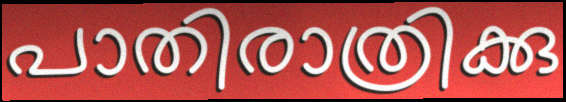
പാതിരാത്രിക്കു